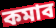
কমাব